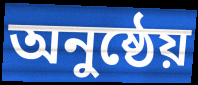
অনুষ্ঠেয়